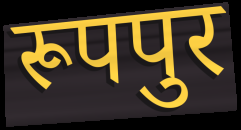
रूपपुर